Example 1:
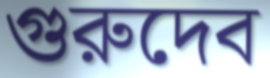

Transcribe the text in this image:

গুরুদেব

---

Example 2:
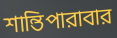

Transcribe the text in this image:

শান্তিপারাবার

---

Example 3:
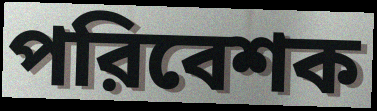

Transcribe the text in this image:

পরিবেশক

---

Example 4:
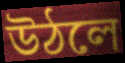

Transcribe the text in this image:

উঠলে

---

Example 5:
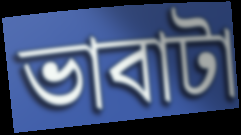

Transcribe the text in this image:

ভাবাটা